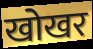
खोखर